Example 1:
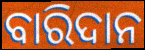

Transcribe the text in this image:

ବାରିଦାନ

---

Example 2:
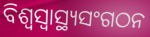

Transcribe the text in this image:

ବିଶ୍ଵସ୍ଵାସ୍ଥ୍ୟସଂଗଠନ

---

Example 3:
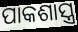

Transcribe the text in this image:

ପାକଶାସ୍ତ୍ର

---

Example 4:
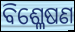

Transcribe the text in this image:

ବିଶ୍ଳେଷଣ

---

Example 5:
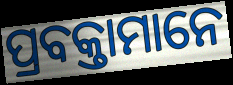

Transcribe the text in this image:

ପ୍ରବକ୍ତାମାନେ